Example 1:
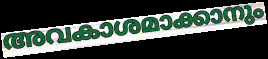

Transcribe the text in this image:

അവകാശമാക്കാനും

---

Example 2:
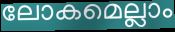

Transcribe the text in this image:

ലോകമെല്ലാം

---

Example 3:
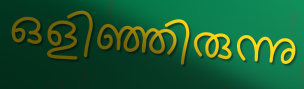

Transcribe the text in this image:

ഒളിഞ്ഞിരുന്നു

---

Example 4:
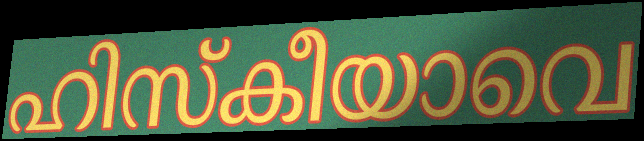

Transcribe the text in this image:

ഹിസ്കീയാവെ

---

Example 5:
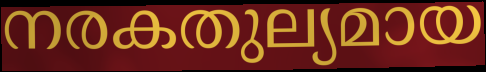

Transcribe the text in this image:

നരകതുല്യമായ